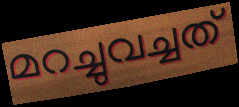
മറച്ചുവച്ചത്